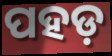
ପହଡ଼